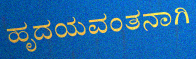
ಹೃದಯವಂತನಾಗಿ